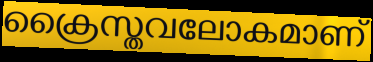
ക്രൈസ്തവലോകമാണ്